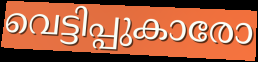
വെട്ടിപ്പുകാരോ